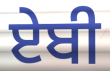
ਏਬੀ